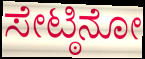
ಸೇಟ್ಠಿನೋ